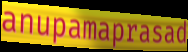
anupamaprasad